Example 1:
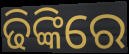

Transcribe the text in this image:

ଢିଙ୍କିରେ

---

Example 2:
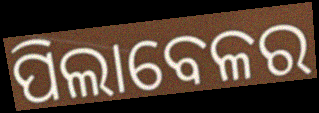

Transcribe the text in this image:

ପିଲାବେଳର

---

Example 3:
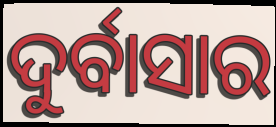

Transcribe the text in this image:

ଦୁର୍ବାସାର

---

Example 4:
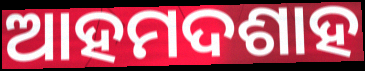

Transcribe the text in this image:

ଆହମଦଶାହ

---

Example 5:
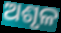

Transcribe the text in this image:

ଅଶୃଳ